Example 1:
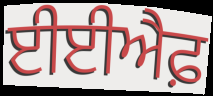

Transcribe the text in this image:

ਈਈਐਫ਼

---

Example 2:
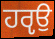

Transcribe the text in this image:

ਹਰੵਉ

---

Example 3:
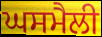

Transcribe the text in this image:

ਘਸਮੈਲੀ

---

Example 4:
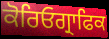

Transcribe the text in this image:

ਕੋਰਿਓਗ੍ਰਾਫਿਕ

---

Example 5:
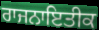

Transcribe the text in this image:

ਰਾਜਨਾਇਤੀਕ